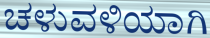
ಚಳುವಳಿಯಾಗಿ